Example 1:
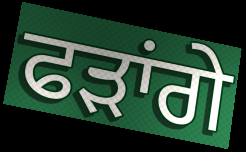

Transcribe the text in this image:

ਫੜਾਂਗੇ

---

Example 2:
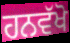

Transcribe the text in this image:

ਹਨਵੱਖੋ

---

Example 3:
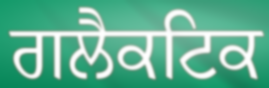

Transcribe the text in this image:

ਗਲੈਕਟਿਕ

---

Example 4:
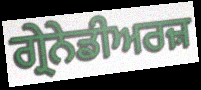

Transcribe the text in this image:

ਗ੍ਰੇਨੇਡੀਅਰਜ਼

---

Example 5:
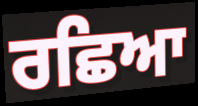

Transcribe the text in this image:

ਰਛਿਆ